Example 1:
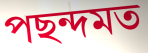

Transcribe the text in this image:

পছন্দমত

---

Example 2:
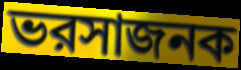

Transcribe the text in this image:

ভরসাজনক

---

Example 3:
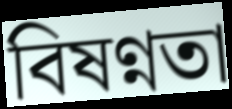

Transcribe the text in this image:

বিষণ্নতা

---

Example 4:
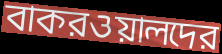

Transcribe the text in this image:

বাকরওয়ালদের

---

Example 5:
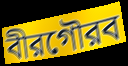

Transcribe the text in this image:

বীরগৌরব